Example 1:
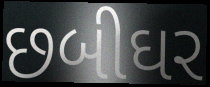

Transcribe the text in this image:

છબીઘર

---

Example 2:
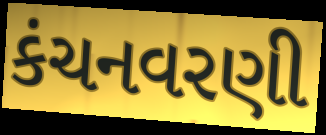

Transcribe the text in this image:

કંચનવરણી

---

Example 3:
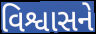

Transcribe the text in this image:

વિશ્વાસને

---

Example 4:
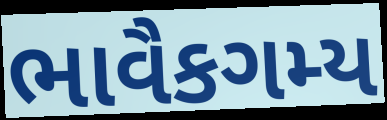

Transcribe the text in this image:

ભાવૈકગમ્ય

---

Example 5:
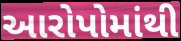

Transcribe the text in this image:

આરોપોમાંથી